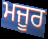
ਮਜੂਰ